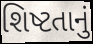
શિષ્ટતાનું